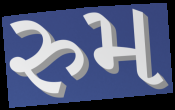
રુમ